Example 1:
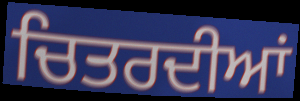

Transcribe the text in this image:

ਚਿਤਰਦੀਆਂ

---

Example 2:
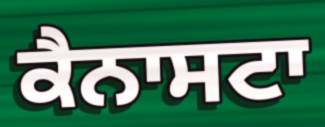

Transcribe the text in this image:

ਕੈਨਾਸਟਾ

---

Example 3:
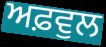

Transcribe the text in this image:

ਅਫ਼ਵੁਲ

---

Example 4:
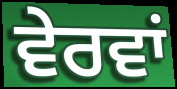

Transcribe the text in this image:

ਵੇਰਵਾਂ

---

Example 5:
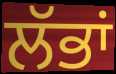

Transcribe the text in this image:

ਲੱਭਾਂ